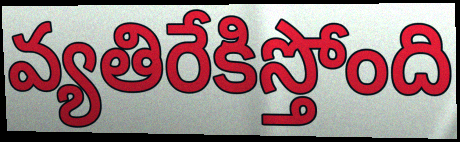
వ్యతిరేకిస్తోంది